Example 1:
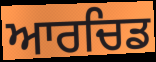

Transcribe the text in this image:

ਆਰਚਿਡ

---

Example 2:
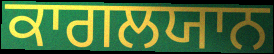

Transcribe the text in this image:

ਕਾਗਲਯਾਨ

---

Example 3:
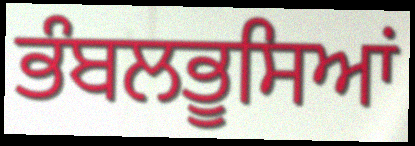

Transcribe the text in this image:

ਭੰਬਲਭੂਸਿਆਂ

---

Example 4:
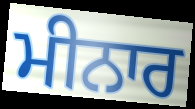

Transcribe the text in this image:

ਮੀਨਾਰ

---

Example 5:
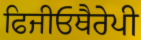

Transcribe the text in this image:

ਫਿਜੀਓਥੈਰੇਪੀ